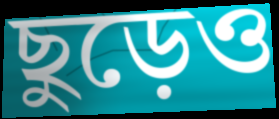
ছুড়েও